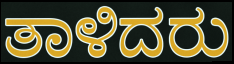
ತಾಳಿದರು